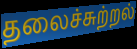
தலைச்சுற்றல்